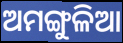
ଅମଙ୍ଗୁଳିଆ